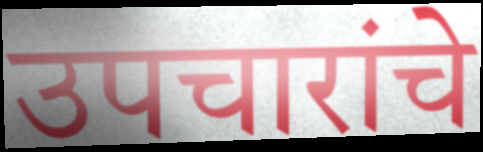
उपचारांचे